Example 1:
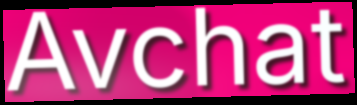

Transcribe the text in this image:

Avchat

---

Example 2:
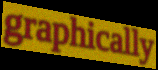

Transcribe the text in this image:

graphically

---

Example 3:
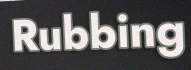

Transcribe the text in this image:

Rubbing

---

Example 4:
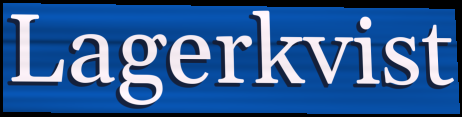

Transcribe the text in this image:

Lagerkvist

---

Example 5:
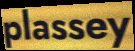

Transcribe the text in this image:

plassey